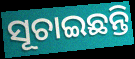
ସୂଚାଇଛନ୍ତି